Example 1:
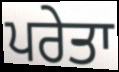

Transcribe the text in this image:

ਪਰੇਤਾ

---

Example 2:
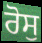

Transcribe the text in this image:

ਰੋਸੁ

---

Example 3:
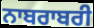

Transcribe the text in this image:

ਨਾਬਰਾਬਰੀ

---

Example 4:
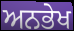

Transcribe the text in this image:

ਅਨਭੇਖ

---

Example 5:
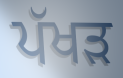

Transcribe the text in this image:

ਪੱਖੜ